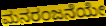
ಮನರಂಜನೆಯೇ